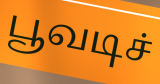
பூவடிச்